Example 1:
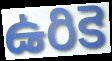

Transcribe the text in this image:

ఉరికె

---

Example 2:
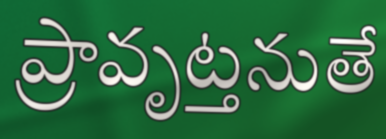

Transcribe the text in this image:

ప్రావృట్తనుతే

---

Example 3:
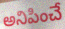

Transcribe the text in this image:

అనిపించే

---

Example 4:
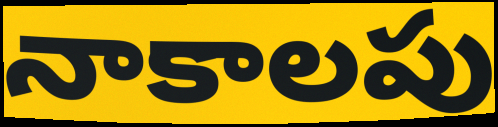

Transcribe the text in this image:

నాకాలపు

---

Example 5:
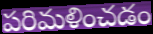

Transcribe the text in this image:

పరిమళించడం